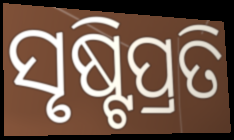
ସୃଷ୍ଟିପ୍ରତି